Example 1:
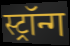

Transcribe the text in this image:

स्ट्रॉन्ग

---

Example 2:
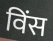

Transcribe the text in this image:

विंस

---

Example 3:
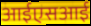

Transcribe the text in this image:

आईएसआई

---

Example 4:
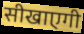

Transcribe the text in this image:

सीखाएगी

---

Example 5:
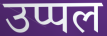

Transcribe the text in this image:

उप्पल